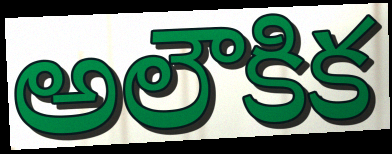
అలౌకిక